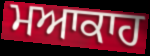
ਮਆਕਾਹ